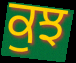
ਕੁਝ